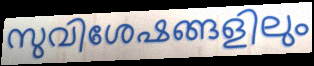
സുവിശേഷങ്ങളിലും